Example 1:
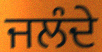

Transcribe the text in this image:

ਜਲੰਦੇ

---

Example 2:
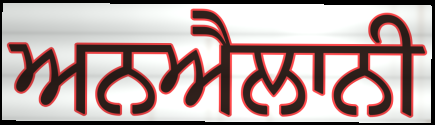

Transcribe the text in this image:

ਅਨਐਲਾਨੀ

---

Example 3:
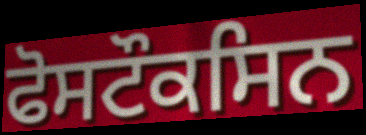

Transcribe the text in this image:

ਫੋਸਟੌਕਸਿਨ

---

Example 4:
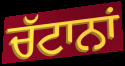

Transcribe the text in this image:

ਚੱਟਾਨਾਂ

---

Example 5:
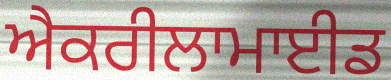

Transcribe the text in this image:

ਐਕਰੀਲਾਮਾਈਡ